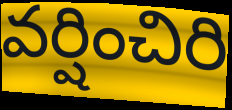
వర్షించిరి